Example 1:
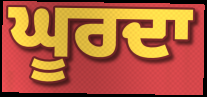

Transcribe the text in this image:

ਘੂਰਦਾ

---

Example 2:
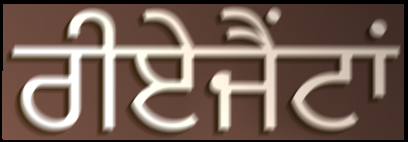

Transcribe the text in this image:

ਰੀਏਜੈਂਟਾਂ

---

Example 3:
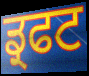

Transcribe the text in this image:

ਡ੍ਰਫਟ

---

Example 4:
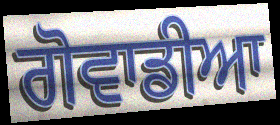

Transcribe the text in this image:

ਗੋਵਾਡੀਆ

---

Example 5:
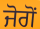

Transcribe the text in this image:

ਜੋਗੋਂ